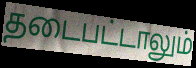
தடைபட்டாலும்